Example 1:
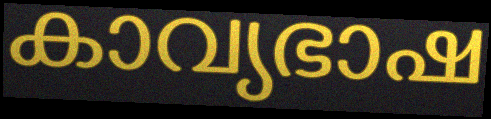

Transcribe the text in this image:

കാവ്യഭാഷ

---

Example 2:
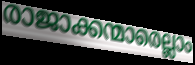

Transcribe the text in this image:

രാജാക്കന്മാരെല്ലാം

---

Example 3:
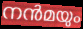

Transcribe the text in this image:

നൻമയും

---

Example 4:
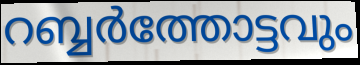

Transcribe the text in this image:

റബ്ബർത്തോട്ടവും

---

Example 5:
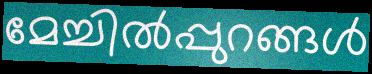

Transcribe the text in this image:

മേച്ചിൽപ്പുറങ്ങൾ